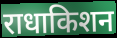
राधाकिशन